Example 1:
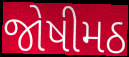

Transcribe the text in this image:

જોષીમઠ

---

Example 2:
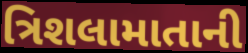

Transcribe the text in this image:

ત્રિશલામાતાની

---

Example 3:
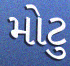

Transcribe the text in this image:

મોટુ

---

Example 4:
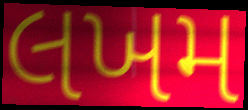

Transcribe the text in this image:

લખમ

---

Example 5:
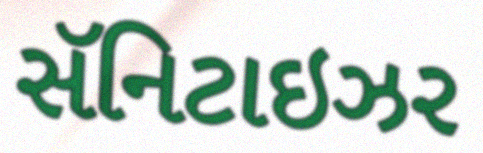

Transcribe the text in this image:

સૅનિટાઇઝર